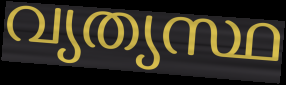
വ്യത്യസ്ഥ